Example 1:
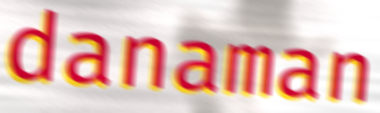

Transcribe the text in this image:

danaman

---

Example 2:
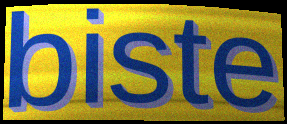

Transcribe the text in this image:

biste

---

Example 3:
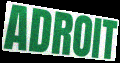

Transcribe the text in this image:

ADROIT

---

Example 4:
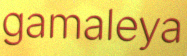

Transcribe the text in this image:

gamaleya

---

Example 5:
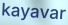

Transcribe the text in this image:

kayavar